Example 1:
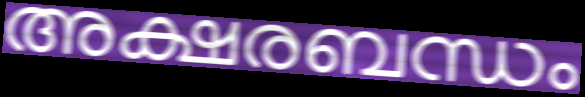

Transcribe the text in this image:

അക്ഷരബന്ധം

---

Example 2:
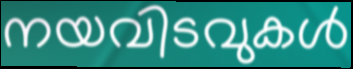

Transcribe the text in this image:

നയവിടവുകൾ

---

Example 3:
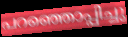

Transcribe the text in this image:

പറഞ്ഞൊപ്പിച്ചു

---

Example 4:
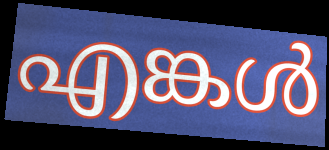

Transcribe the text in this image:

എങ്കൾ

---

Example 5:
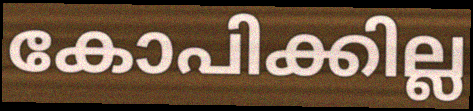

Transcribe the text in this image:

കോപിക്കില്ല